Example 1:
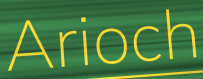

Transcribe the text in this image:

Arioch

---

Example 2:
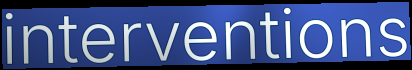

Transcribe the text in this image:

interventions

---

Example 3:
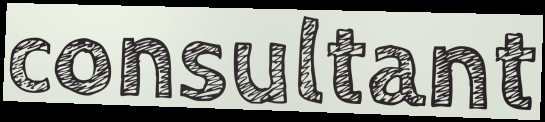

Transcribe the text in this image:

consultant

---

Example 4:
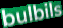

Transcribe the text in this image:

bulbils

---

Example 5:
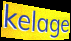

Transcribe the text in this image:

kelage